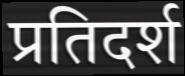
प्रतिदर्श